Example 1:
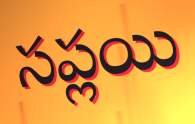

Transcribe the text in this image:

సప్లయి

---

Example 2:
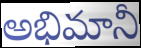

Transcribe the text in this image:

అభిమానీ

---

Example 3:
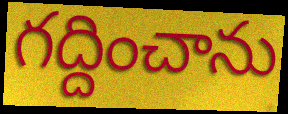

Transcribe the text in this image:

గద్దించాను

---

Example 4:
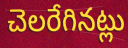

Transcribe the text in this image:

చెలరేగినట్లు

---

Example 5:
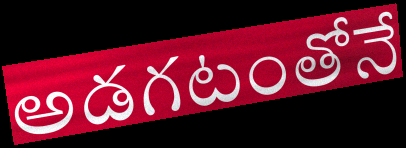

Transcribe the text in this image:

అడగటంతోనే